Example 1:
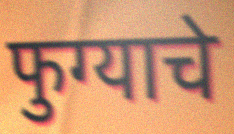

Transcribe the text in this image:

फुग्याचे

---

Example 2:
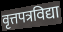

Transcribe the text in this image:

वृत्तपत्रविद्या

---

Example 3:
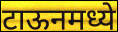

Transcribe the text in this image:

टाऊनमध्ये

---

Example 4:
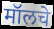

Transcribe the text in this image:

मॉलचे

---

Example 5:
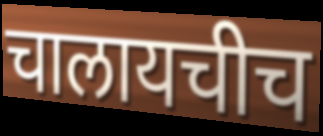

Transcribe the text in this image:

चालायचीच